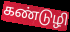
கண்டுழி